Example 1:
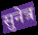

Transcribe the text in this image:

सुनेत्र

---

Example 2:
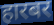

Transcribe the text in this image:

हारबर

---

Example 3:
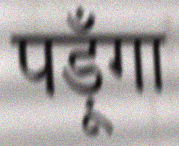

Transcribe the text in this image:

पड़ूँगा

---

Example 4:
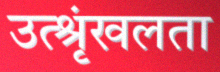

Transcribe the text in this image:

उत्श्रृंखलता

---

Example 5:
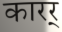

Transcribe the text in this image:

कारर्